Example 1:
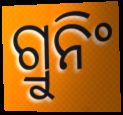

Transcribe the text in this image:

ଗ୍ରୁନିଂ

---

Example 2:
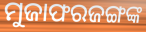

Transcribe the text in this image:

ମୁଜାଫରଜଙ୍ଗଙ୍କ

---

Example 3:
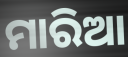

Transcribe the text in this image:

ମାରିଆ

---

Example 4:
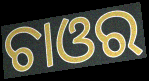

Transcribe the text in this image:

ଚାଓର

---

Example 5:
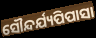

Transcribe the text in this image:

ସୌନ୍ଦର୍ଯ୍ୟପିପାସା